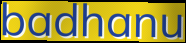
badhanu